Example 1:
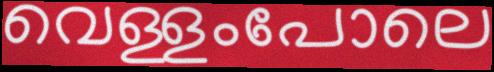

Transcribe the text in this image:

വെള്ളംപോലെ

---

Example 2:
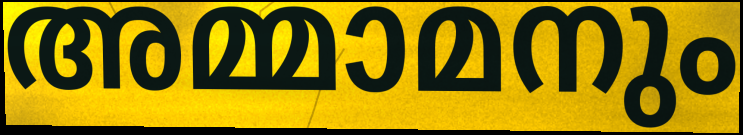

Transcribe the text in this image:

അമ്മാമനും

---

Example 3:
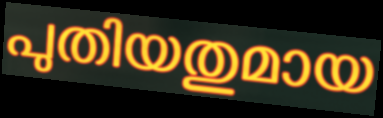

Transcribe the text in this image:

പുതിയതുമായ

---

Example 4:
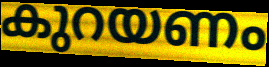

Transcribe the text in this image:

കുറയണം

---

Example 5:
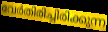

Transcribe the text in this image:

വേർതിരിച്ചിരിക്കുന്ന